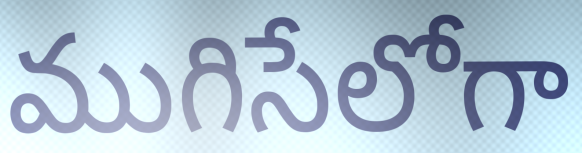
ముగిసేలోగా